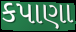
કપાણા